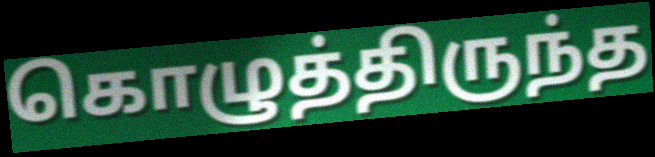
கொழுத்திருந்த